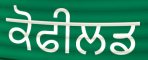
ਕੋਫੀਲਡ